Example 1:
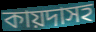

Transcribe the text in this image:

কায়দাসহ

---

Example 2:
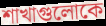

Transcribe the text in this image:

শাখাগুলোকে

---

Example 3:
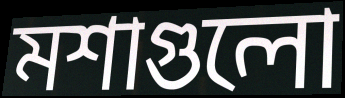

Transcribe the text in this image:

মশাগুলো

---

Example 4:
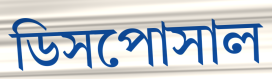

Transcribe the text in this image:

ডিসপোসাল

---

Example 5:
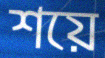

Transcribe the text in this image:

শয়ে